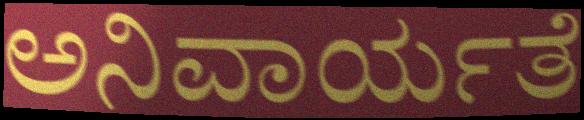
ಅನಿವಾರ್ಯತೆ